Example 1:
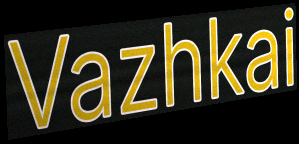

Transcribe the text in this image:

Vazhkai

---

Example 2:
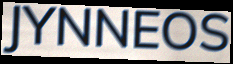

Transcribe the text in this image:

JYNNEOS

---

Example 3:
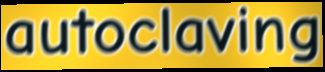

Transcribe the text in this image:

autoclaving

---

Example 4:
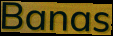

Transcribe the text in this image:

Banas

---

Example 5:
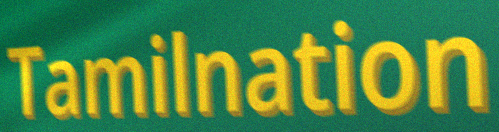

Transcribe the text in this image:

Tamilnation